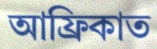
আফ্ৰিকাত